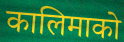
कालिमाको